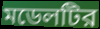
মডেলটির